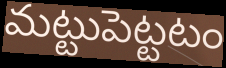
మట్టుపెట్టటం